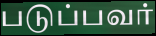
படுப்பவர்